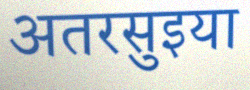
अतरसुइया